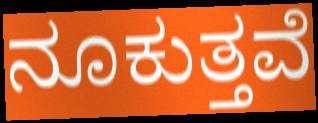
ನೂಕುತ್ತವೆ